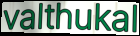
valthukal